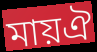
মায়ঐ